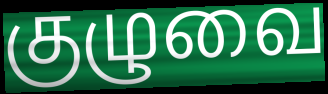
குழுவை